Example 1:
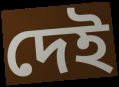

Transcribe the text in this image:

দেই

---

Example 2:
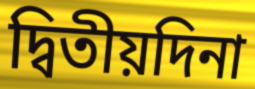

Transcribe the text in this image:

দ্বিতীয়দিনা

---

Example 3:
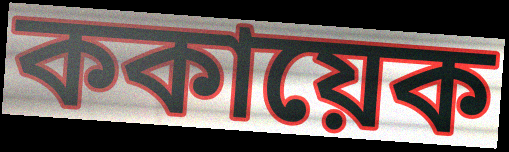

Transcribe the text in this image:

ককায়েক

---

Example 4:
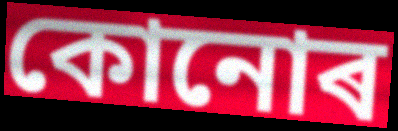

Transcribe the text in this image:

কোনোৰ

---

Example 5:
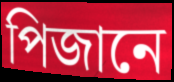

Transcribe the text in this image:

পিজানে